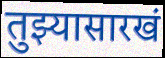
तुझ्यासारखं